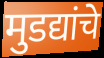
मुडद्यांचे